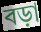
বড়া